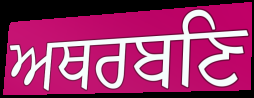
ਅਥਰਬਣਿ